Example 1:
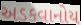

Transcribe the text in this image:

અડકવાનોય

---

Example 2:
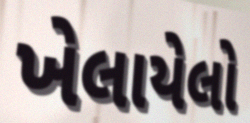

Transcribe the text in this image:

ખેલાયેલો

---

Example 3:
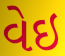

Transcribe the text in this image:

વેઇ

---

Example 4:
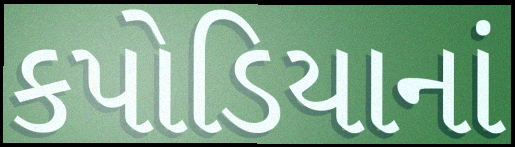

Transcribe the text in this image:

કપોડિયાનાં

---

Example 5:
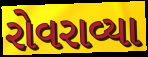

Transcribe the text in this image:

રોવરાવ્યા